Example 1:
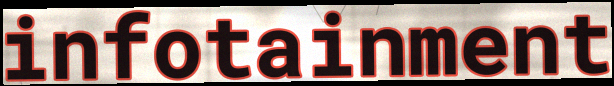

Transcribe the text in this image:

infotainment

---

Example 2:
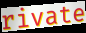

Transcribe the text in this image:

rivate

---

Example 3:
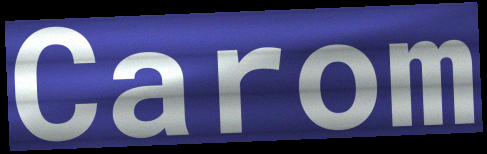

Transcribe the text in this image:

Carom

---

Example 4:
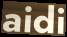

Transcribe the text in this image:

aidi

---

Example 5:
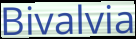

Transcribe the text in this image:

Bivalvia